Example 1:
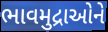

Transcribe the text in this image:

ભાવમુદ્રાઓને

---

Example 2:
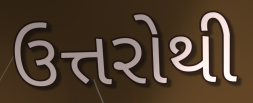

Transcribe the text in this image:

ઉત્તરોથી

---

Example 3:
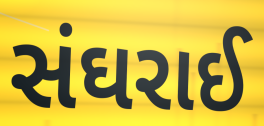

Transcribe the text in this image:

સંઘરાઈ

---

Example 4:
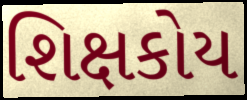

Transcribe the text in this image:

શિક્ષકોય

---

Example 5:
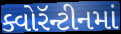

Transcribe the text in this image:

ક્વોરૅન્ટીનમાં